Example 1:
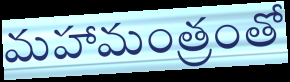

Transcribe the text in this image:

మహామంత్రంతో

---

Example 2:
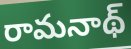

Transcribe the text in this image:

రామనాథ్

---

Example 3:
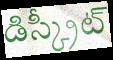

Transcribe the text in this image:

డిస్క్రీట్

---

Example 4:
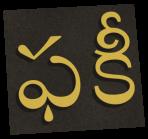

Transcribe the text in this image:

ఫకీ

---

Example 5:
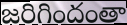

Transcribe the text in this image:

జరిగిందంతా